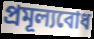
প্ৰমূল্যবোধ